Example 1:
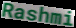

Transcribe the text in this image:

Rashmi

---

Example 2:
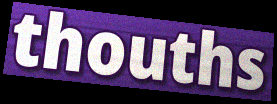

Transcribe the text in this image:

thouths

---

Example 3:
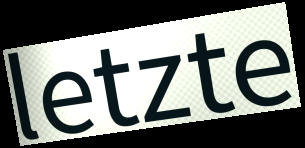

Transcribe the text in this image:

letzte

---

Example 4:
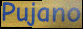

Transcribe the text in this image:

Pujano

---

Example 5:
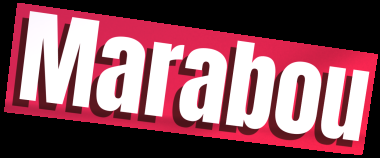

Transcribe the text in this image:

Marabou